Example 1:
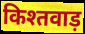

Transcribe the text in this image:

किश्तवाड़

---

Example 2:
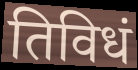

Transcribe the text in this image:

तिविधं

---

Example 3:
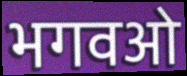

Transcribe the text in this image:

भगवओ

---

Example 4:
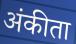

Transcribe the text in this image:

अंकीता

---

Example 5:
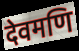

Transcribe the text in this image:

देवमणि